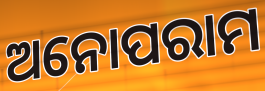
ଅନୋପରାମ